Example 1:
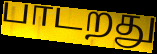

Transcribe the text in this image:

பாடறது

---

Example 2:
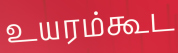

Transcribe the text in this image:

உயரம்கூட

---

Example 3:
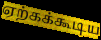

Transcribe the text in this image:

ஏற்கக்கூடிய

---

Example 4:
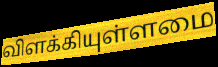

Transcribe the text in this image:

விளக்கியுள்ளமை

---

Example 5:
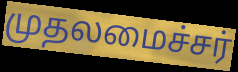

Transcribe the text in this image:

முதலமைச்சர்